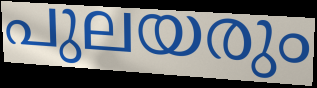
പുലയരും